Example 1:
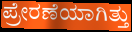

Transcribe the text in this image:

ಪ್ರೇರಣೆಯಾಗಿತ್ತು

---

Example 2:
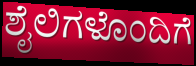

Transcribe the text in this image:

ಶೈಲಿಗಳೊಂದಿಗೆ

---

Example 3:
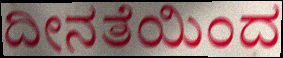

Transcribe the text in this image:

ದೀನತೆಯಿಂದ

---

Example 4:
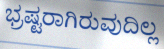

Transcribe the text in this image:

ಭ್ರಷ್ಟರಾಗಿರುವುದಿಲ್ಲ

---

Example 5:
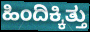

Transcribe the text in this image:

ಹಿಂದಿಕ್ಕಿತ್ತು